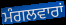
ਮੰਗਲਵਾਰਾਂ